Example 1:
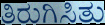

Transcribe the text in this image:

ತಿರುಗಿಸಿತು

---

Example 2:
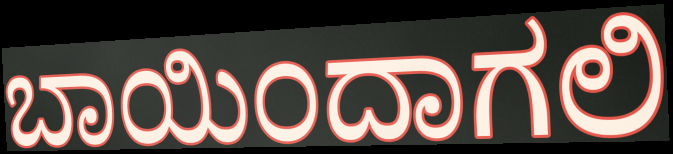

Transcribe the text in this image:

ಬಾಯಿಂದಾಗಲಿ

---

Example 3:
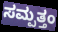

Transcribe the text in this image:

ಸಮ್ಪತ್ತಂ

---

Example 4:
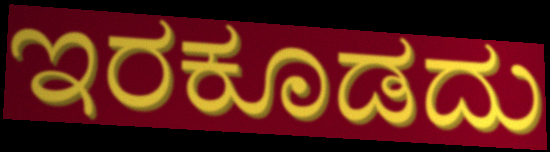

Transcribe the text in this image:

ಇರಕೂಡದು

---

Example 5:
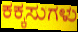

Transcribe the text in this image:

ಕಕ್ಕಸುಗಳು